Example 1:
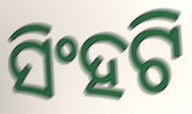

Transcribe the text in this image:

ସିଂହଟି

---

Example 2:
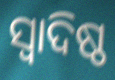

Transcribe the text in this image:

ସ୍ୱାଦିଷ୍ଠ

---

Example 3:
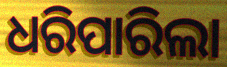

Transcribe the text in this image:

ଧରିପାରିଲା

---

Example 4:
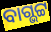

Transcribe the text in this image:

ବାଗ୍ଭଟ୍ଟ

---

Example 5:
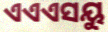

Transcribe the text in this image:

ଏଏଏସୟୁ